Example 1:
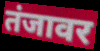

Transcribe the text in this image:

तंजावर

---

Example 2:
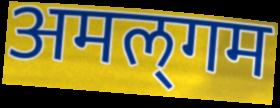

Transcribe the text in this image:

अमल्गम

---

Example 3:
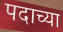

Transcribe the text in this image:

पदाच्या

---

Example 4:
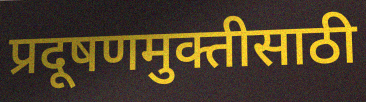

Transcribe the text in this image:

प्रदूषणमुक्तीसाठी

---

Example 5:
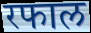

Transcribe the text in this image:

रफाल